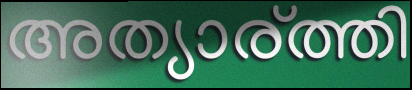
അത്യാര്ത്തി